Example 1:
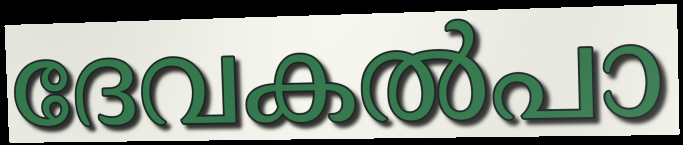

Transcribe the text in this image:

ദേവകൽപാ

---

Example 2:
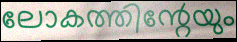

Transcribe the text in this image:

ലോകത്തിന്റേയും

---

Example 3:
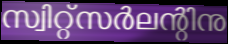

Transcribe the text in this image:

സ്വിറ്റ്സർലന്റിനു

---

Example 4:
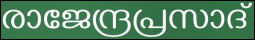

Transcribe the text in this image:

രാജേന്ദ്രപ്രസാദ്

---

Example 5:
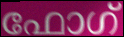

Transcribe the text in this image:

ഫോഗ്